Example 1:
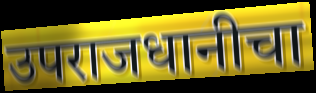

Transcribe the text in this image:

उपराजधानीचा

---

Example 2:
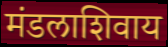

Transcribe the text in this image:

मंडलाशिवाय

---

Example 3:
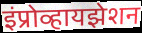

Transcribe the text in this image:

इंप्रोव्हायझेशन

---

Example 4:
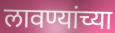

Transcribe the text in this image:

लावण्यांच्या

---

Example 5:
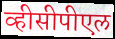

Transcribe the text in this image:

व्हीसीपीएल